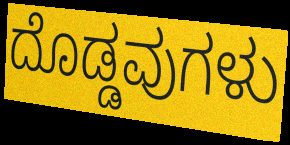
ದೊಡ್ಡವುಗಳು